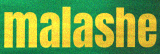
malashe